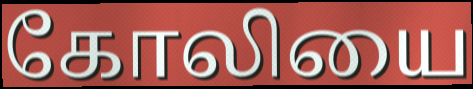
கோலியை